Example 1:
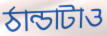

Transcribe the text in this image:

ঠান্ডাটাও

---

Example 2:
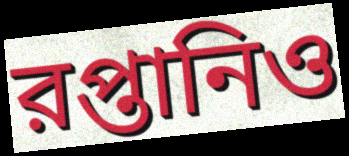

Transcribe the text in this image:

রপ্তানিও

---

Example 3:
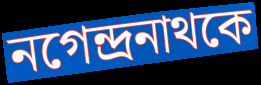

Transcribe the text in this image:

নগেন্দ্রনাথকে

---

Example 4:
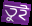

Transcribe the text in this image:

তুই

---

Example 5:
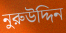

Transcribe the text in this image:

নুরুউদ্দিন